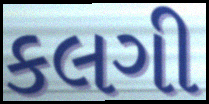
કલગી